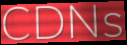
CDNs